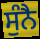
ਸੁੰਨੈ